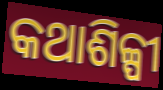
କଥାଶିଳ୍ପୀ